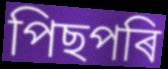
পিছপৰি